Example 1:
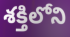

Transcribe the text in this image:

శక్తిలోని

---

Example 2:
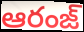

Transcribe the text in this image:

ఆరంజ్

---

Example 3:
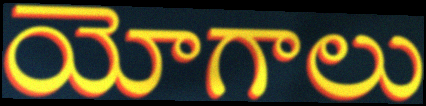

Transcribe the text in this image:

యోగాలు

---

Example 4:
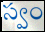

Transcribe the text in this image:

స్వం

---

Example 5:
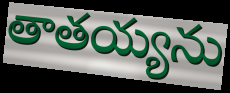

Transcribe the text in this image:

తాతయ్యను